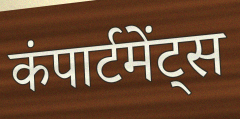
कंपार्टमेंट्स